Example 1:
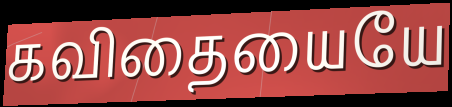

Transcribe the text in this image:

கவிதையையே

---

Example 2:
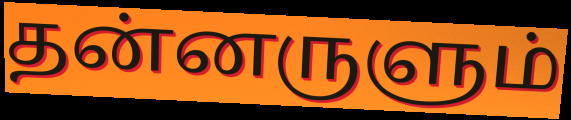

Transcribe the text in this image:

தன்னருளும்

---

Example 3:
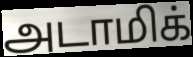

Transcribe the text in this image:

அடாமிக்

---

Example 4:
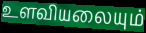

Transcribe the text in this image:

உளவியலையும்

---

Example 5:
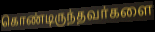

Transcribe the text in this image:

கொண்டிருந்தவர்களை